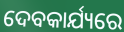
ଦେବକାର୍ଯ୍ୟରେ